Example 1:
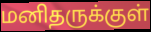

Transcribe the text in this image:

மனிதருக்குள்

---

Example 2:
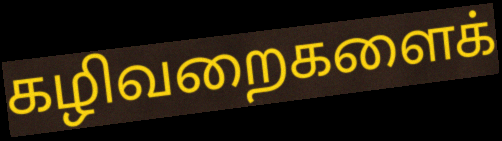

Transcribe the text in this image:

கழிவறைகளைக்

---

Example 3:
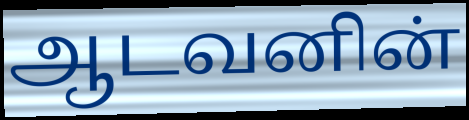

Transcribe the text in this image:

ஆடவனின்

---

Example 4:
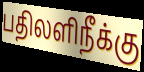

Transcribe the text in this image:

பதிலளிநீக்கு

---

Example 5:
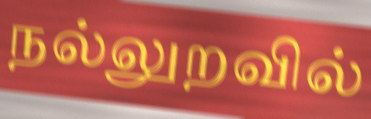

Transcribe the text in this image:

நல்லுறவில்